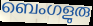
ബെംഗളുരു